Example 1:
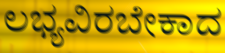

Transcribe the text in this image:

ಲಭ್ಯವಿರಬೇಕಾದ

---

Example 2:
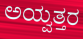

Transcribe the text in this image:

ಅಯ್ವತ್ತರ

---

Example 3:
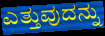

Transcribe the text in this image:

ಎತ್ತುವುದನ್ನು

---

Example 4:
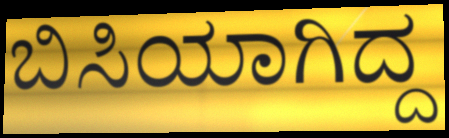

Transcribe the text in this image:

ಬಿಸಿಯಾಗಿದ್ದ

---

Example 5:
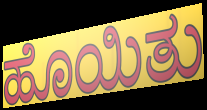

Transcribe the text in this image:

ಹೊಯಿತು